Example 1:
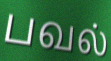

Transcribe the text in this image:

பவல்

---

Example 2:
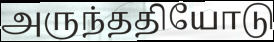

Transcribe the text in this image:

அருந்ததியோடு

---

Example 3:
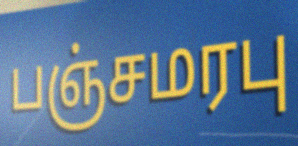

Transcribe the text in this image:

பஞ்சமரபு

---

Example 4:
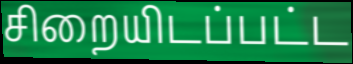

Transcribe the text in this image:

சிறையிடப்பட்ட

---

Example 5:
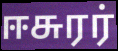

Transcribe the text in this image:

ஈசுரர்